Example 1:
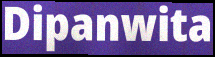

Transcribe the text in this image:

Dipanwita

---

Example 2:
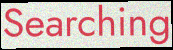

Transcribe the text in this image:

Searching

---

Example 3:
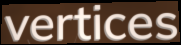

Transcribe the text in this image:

vertices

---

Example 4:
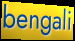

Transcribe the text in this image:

bengali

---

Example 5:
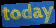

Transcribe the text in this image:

today